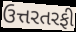
ઉત્તરતરફી